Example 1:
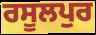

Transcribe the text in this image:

ਰਸੂਲਪੁਰ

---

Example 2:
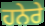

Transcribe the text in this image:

ਹਨੇਰੇ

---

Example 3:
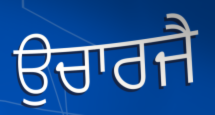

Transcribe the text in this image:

ਉਚਾਰਜੈ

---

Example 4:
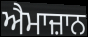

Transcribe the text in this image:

ਐਮਾਜ਼ਾਨ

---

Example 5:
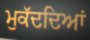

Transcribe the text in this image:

ਮੁਕੱਦਦਿਆਂ